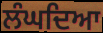
ਲੰਘਦਿਆ